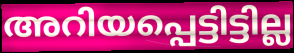
അറിയപ്പെട്ടിട്ടില്ല